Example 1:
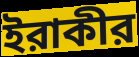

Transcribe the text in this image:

ইরাকীর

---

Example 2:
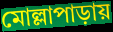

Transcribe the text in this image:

মোল্লাপাড়ায়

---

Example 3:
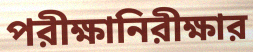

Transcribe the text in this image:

পরীক্ষানিরীক্ষার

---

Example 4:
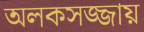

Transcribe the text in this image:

অলকসজ্জায়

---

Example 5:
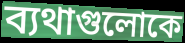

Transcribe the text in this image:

ব্যথাগুলোকে